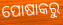
ପୋଷାକରୁ